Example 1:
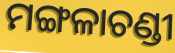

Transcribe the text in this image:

ମଙ୍ଗଳାଚଣ୍ଡୀ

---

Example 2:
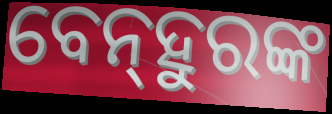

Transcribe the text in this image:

ବେନ୍‍ହୁରଙ୍କ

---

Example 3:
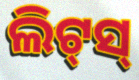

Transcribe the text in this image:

ଲିଟ୍‌ସ୍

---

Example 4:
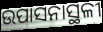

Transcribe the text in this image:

ଉପାସନାସ୍ଥଳୀ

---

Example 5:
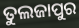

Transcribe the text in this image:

ତୁଲଜାପୁର